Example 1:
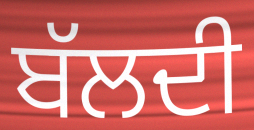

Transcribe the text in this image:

ਬੱਲਦੀ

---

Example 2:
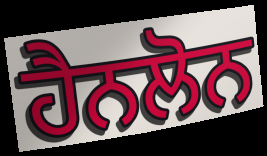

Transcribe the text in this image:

ਹੈਨਲੋਨ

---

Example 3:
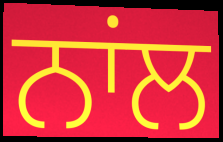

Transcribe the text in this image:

ਨਾਂਲ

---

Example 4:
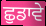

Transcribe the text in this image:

ਛੁਡਾਵੇ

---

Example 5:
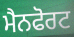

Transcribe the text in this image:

ਮੈਨਫੋਰਟ